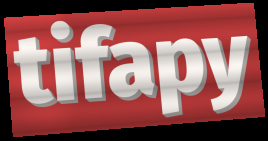
tifapy